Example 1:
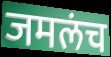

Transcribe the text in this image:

जमलंच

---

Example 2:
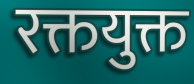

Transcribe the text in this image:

रक्तयुक्त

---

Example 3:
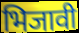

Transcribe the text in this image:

भिजावी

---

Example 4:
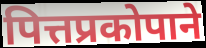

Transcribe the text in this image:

पित्तप्रकोपाने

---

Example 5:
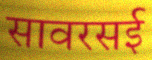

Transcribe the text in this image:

सावरसई